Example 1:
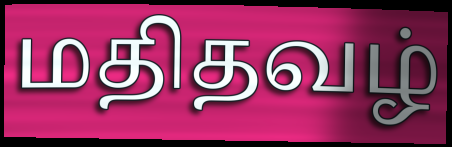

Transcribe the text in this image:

மதிதவழ்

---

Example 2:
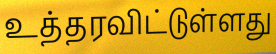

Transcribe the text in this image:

உத்தரவிட்டுள்ளது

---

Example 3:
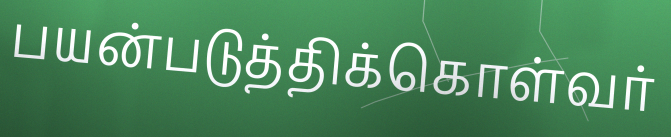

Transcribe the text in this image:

பயன்படுத்திக்கொள்வர்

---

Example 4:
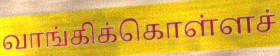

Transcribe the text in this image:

வாங்கிக்கொள்ளச்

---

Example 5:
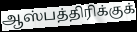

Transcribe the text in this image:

ஆஸ்பத்திரிக்குக்